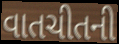
વાતચીતની